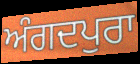
ਅੰਗਦਪੁਰਾ